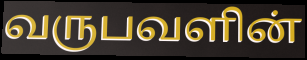
வருபவளின்